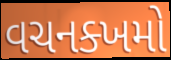
વચનક્ખમો